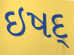
ઇષદ્